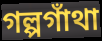
গল্পগাঁথা